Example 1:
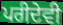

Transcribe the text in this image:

ਪਰੀਦੇਵੀ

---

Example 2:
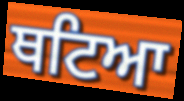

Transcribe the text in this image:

ਥਟਿਆ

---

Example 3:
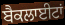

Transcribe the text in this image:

ਬੈਕਲਾਈਟਾਂ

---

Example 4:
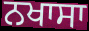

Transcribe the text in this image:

ਨਖਾਸਾ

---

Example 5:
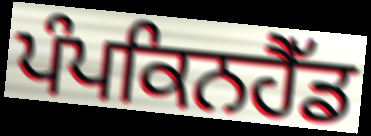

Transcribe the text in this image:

ਪੰਪਕਿਨਹੈੱਡ